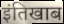
इंतिखाब